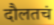
दौलतचं